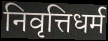
निवृत्तिधर्म